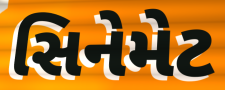
સિનેમેટ